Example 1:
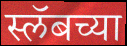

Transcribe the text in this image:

स्लॅबच्या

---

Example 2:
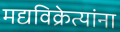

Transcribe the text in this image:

मद्यविक्रेत्यांना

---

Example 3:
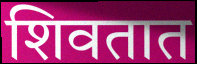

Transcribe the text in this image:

शिवतात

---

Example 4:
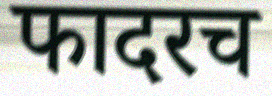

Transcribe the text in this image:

फादरच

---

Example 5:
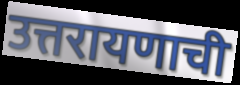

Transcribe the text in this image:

उत्तरायणाची